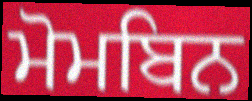
ਮੋਮਬਿਨ